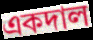
একদাল